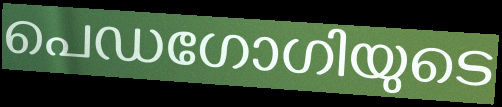
പെഡഗോഗിയുടെ